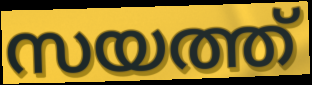
സയത്ത്